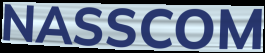
NASSCOM